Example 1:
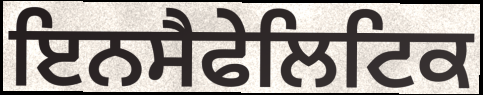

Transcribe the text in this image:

ਇਨਸੈਫੇਲਿਟਿਕ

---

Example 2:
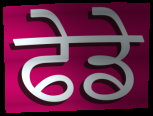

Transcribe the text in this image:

ਫੇਡੇ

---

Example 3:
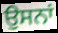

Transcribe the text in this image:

ਉਸਨਾਂ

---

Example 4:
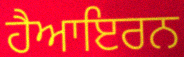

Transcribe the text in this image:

ਹੈਆਇਰਨ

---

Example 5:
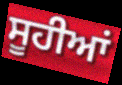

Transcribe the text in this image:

ਸੂਹੀਆਂ